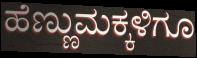
ಹೆಣ್ಣುಮಕ್ಕಳಿಗೂ